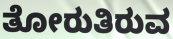
ತೋರುತಿರುವ